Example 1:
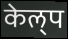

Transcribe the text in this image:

केल्प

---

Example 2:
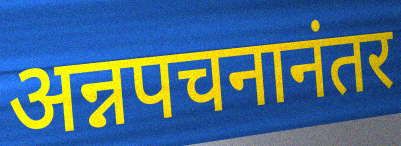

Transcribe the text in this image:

अन्नपचनानंतर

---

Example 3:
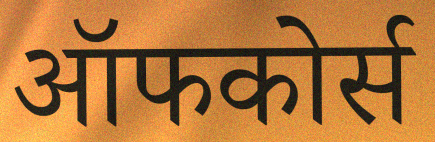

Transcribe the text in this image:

ऑफकोर्स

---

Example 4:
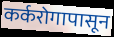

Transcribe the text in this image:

कर्करोगापासून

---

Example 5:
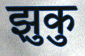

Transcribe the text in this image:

झुकु